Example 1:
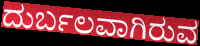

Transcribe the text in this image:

ದುರ್ಬಲವಾಗಿರುವ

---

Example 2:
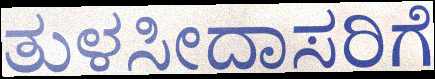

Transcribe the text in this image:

ತುಳಸೀದಾಸರಿಗೆ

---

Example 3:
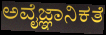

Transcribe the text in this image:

ಅವೈಜ್ಞಾನಿಕತೆ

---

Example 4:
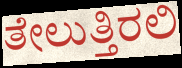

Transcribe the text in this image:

ತೇಲುತ್ತಿರಲಿ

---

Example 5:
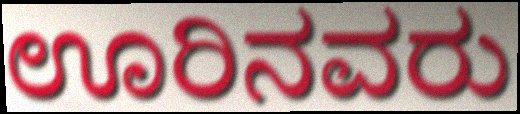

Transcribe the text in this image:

ಊರಿನವರು